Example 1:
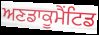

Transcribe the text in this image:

ਅਣਡਾਕੂਮੈਂਟਿਡ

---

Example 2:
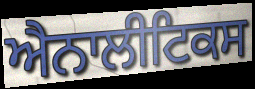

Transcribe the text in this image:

ਐਨਾਲੀਟਿਕਸ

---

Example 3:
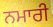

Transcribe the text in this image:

ਨਮਾਰੀ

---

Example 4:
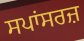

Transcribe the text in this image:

ਸਪਾਂਸਰਜ਼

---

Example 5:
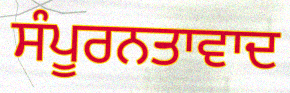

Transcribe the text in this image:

ਸੰਪੂਰਨਤਾਵਾਦ